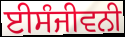
ਈਸੰਜੀਵਨੀ